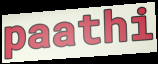
paathi